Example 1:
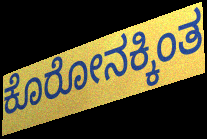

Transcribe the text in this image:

ಕೊರೋನಕ್ಕಿಂತ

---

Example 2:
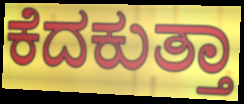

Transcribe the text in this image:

ಕೆದಕುತ್ತಾ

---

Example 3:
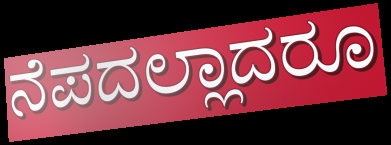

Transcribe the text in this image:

ನೆಪದಲ್ಲಾದರೂ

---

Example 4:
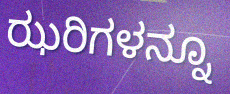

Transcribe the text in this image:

ಝರಿಗಳನ್ನೂ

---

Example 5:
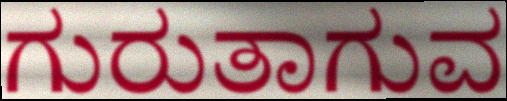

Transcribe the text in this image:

ಗುರುತಾಗುವ